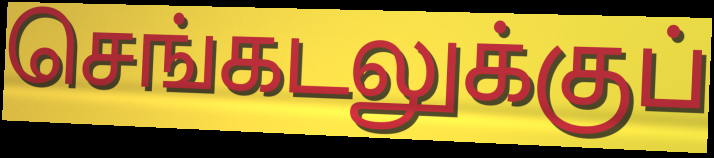
செங்கடலுக்குப்